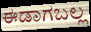
ಈಡಾಗಬಲ್ಲ